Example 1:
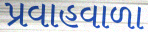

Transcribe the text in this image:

પ્રવાહવાળા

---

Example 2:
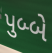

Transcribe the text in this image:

પુબ્બે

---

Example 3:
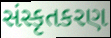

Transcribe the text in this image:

સંસ્કૃતકરણ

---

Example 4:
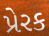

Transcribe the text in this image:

પ્રેરક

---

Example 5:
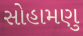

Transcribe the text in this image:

સોહામણુ